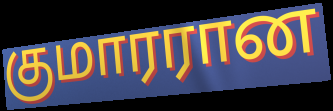
குமாரரான